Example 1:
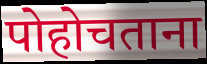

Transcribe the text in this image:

पोहोचताना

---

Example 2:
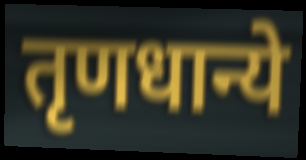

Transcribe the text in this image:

तृणधान्ये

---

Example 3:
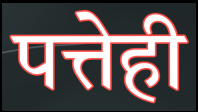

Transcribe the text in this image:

पत्तेही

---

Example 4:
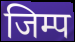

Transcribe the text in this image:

जिम्प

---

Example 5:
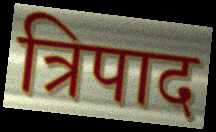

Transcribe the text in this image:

त्रिपाद